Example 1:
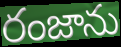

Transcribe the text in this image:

రంజాను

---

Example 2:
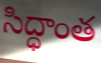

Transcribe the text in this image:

సిద్ధాంత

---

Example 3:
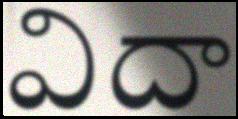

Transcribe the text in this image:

విదా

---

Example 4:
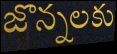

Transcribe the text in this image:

జొన్నలకు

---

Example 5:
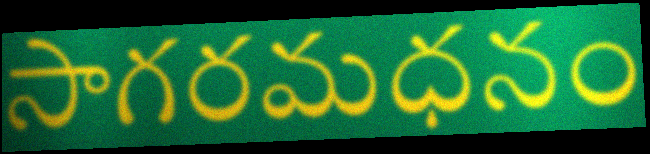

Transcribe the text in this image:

సాగరమధనం